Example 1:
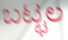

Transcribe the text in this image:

ಬಟ್ಟಲ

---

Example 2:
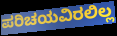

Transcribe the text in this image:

ಪರಿಚಯವಿರಲಿಲ್ಲ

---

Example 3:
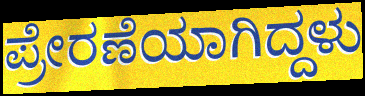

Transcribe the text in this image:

ಪ್ರೇರಣೆಯಾಗಿದ್ದಳು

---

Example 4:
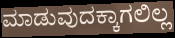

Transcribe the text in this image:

ಮಾಡುವುದಕ್ಕಾಗಲಿಲ್ಲ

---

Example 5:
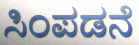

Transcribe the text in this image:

ಸಿಂಪಡನೆ